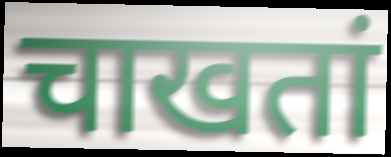
चाखतां